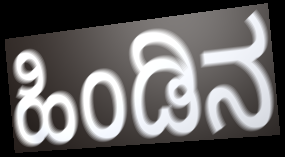
ಹಿಂಡಿನ